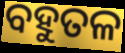
ବହୁତଳ